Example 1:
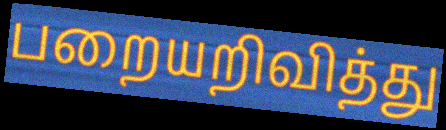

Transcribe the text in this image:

பறையறிவித்து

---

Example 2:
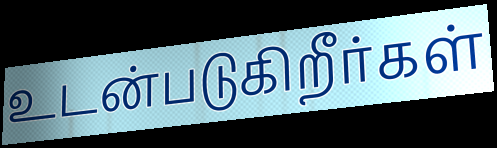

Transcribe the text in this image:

உடன்படுகிறீர்கள்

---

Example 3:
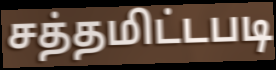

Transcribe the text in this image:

சத்தமிட்டபடி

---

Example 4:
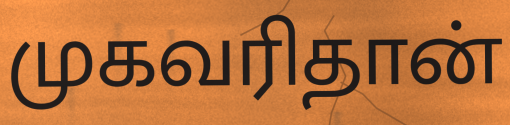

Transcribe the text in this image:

முகவரிதான்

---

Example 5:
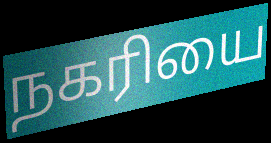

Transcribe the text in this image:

நகரியை